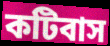
কটিবাস